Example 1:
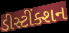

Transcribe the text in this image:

ડીસ્ટીંક્શન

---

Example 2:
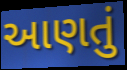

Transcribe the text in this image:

આણતું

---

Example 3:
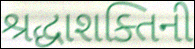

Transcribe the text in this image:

શ્રદ્ધાશક્તિની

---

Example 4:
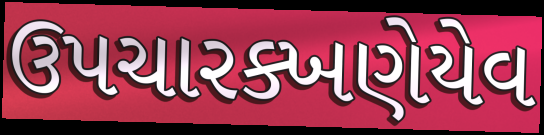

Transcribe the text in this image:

ઉપચારક્ખણેયેવ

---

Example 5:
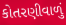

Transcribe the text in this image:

કોતરણીવાળું